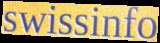
swissinfo